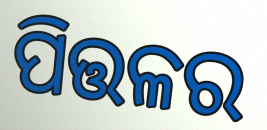
ପିତ୍ତଳର